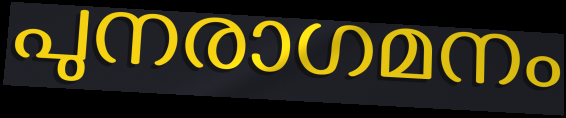
പുനരാഗമനം